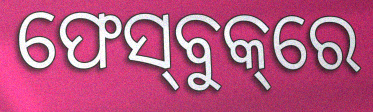
ଫେସ୍‌ବୁକ୍‌ରେ